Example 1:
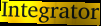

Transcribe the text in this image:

Integrator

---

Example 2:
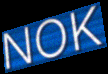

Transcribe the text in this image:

NOK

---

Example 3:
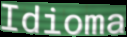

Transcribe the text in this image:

Idioma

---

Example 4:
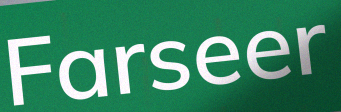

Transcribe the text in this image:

Farseer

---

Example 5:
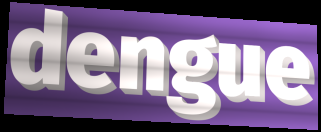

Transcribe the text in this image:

dengue